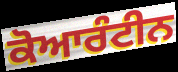
ਕੋਆਰੰਟੀਨ